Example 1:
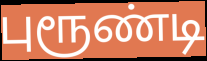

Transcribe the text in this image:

புரூண்டி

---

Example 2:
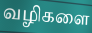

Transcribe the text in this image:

வழிகளை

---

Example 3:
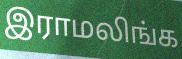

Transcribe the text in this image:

இராமலிங்க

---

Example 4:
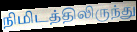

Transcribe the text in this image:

நிமிடத்திலிருந்து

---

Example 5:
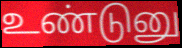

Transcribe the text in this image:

உண்டுனு